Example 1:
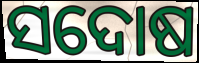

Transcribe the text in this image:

ସଦୋଷ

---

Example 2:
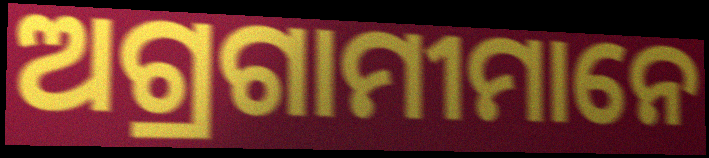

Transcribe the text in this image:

ଅଗ୍ରଗାମୀମାନେ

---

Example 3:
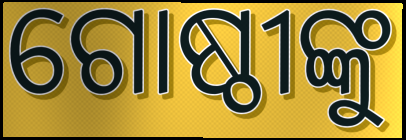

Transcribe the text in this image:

ଗୋଷ୍ଠୀଙ୍କୁ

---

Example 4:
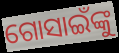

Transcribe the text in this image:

ଗୋସାଇଁଙ୍କୁ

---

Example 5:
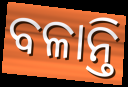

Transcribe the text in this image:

ବଳାନ୍ତି